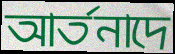
আর্তনাদে